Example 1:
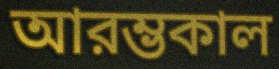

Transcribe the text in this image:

আরম্ভকাল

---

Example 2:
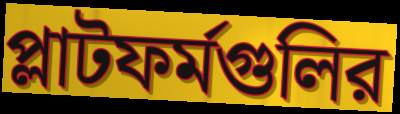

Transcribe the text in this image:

প্লাটফর্মগুলির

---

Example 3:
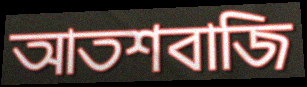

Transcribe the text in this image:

আতশবাজি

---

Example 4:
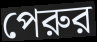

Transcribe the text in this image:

পেরুর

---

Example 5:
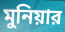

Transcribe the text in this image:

মুনিয়ার